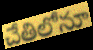
చేతిలోనూ